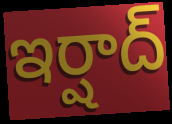
ఇర్షాద్